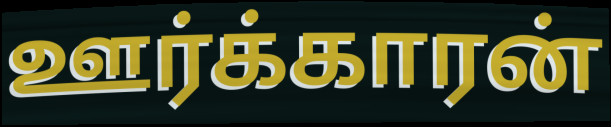
ஊர்க்காரன்